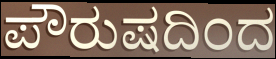
ಪೌರುಷದಿಂದ